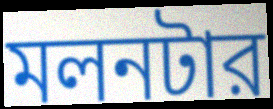
মলনটার